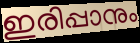
ഇരിപ്പാനും